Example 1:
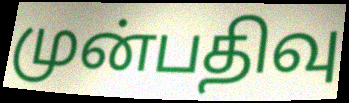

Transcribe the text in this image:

முன்பதிவு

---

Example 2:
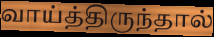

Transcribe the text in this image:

வாய்த்திருந்தால்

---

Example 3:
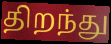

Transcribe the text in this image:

திறந்து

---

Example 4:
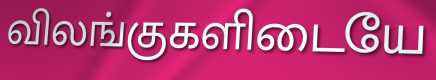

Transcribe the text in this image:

விலங்குகளிடையே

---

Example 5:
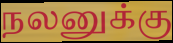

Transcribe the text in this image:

நலனுக்கு